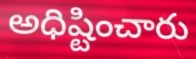
అధిష్టించారు